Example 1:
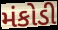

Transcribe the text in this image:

મંકોડી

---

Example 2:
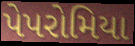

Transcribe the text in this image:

પેપરોમિયા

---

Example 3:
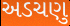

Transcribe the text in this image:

અડચણુ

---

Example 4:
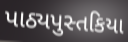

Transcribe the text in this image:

પાઠ્યપુસ્તકિયા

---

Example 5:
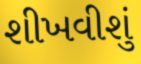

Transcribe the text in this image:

શીખવીશું